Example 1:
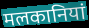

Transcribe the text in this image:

मलकानियां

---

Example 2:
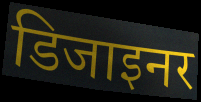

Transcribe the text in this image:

डिजाइनर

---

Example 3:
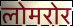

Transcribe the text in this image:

लोमरोर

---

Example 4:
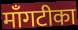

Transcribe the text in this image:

माँगटीका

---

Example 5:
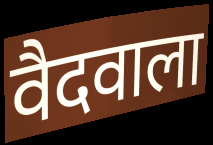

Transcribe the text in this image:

वैदवाला